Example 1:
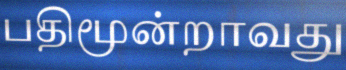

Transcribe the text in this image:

பதிமூன்றாவது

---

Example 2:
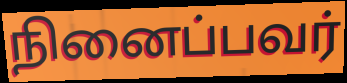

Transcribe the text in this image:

நினைப்பவர்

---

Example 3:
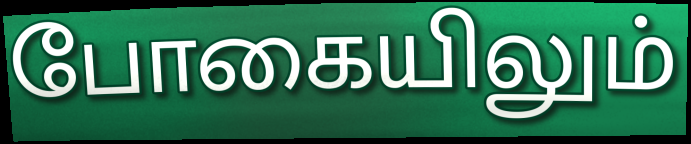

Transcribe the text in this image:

போகையிலும்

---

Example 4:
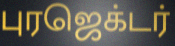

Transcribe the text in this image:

புரஜெக்டர்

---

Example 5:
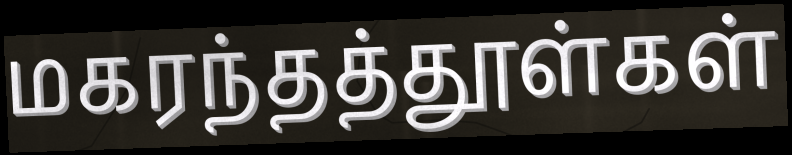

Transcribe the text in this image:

மகரந்தத்தூள்கள்